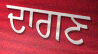
ਦਾਗਣ